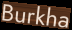
Burkha